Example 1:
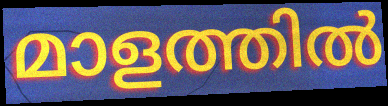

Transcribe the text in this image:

മാളത്തിൽ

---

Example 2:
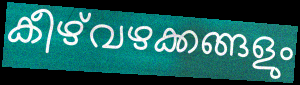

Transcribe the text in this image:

കീഴ്‌വഴക്കങ്ങളും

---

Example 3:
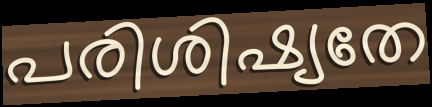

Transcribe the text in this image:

പരിശിഷ്യതേ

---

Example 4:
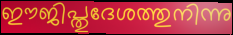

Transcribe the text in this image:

ഈജിപ്തുദേശത്തുനിന്നു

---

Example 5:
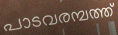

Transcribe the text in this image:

പാടവരമ്പത്ത്